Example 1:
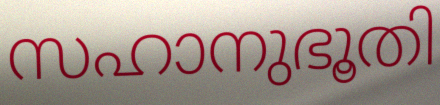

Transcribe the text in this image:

സഹാനുഭൂതി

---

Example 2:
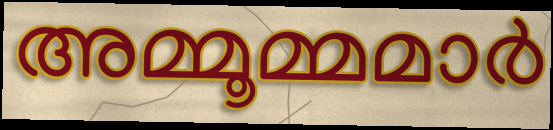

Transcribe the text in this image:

അമ്മൂമ്മമാർ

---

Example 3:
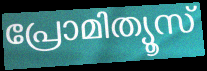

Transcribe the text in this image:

പ്രോമിത്യൂസ്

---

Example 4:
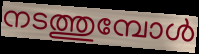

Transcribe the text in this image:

നടത്തുമ്പോൾ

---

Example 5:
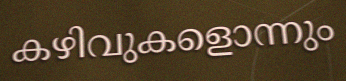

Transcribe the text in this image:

കഴിവുകളൊന്നും